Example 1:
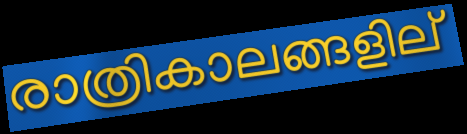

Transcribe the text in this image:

രാത്രികാലങ്ങളില്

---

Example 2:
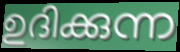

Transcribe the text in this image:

ഉദിക്കുന്ന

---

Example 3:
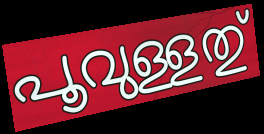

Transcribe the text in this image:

പൂവുള്ളതു്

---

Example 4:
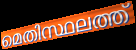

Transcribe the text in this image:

മെതിസ്ഥലത്ത്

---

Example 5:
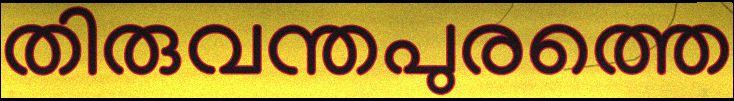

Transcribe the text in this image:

തിരുവന്തപുരത്തെ